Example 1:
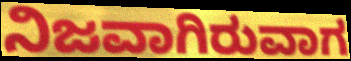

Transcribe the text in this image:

ನಿಜವಾಗಿರುವಾಗ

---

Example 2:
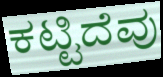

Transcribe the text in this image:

ಕಟ್ಟಿದೆವು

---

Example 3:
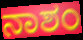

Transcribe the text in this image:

ನಾಶಂ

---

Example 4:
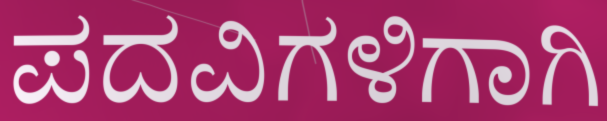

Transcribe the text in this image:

ಪದವಿಗಳಿಗಾಗಿ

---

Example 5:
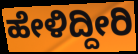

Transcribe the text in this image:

ಹೇಳಿದ್ದೀರಿ